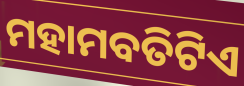
ମହାମବତିଟିଏ